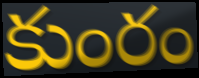
కుంరం